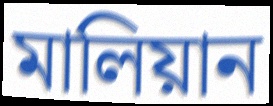
মালিয়ান